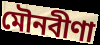
মৌনবীণা